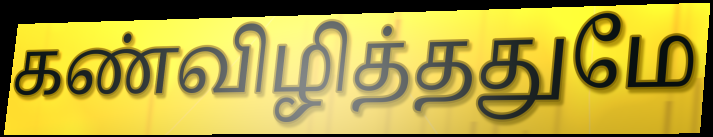
கண்விழித்ததுமே